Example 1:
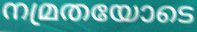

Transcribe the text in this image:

നമ്രതയോടെ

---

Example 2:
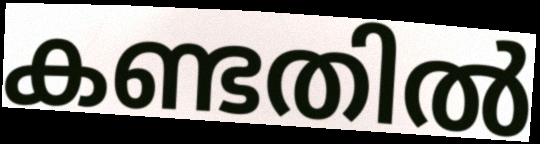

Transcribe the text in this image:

കണ്ടതിൽ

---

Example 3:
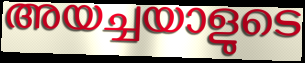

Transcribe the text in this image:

അയച്ചയാളുടെ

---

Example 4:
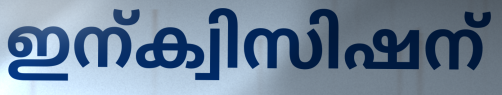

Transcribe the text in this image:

ഇന്ക്വിസിഷന്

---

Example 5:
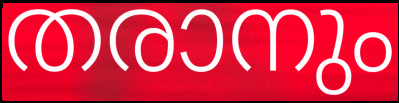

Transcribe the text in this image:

തരാനും